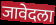
जावेदला